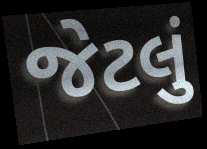
જેટલું